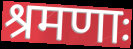
श्रमणाः